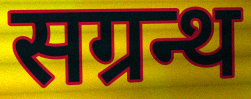
सग्रन्थ